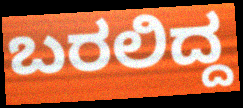
ಬರಲಿದ್ದ